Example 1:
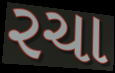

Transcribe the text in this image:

રચા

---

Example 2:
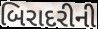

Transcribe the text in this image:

બિરાદરીની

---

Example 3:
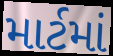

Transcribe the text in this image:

માર્ટમાં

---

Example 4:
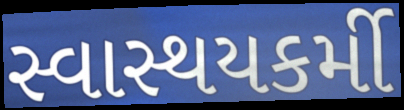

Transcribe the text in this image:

સ્વાસ્થયકર્મી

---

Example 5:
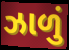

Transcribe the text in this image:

ઝાળું